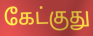
கேட்குது